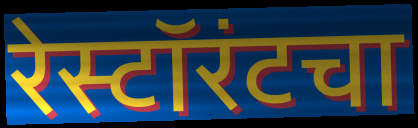
रेस्टॉरंटचा